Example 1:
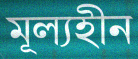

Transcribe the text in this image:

মূল্যহীন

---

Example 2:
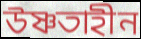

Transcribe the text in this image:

উষ্ণতাহীন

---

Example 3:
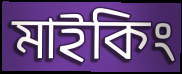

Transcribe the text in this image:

মাইকিং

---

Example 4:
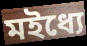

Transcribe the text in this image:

মইধ্যে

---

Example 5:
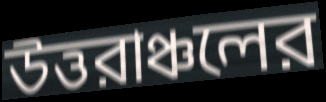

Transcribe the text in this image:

উত্তরাঞ্চলের